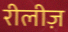
रीलीज़